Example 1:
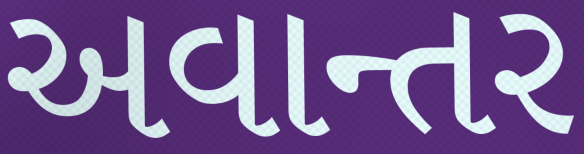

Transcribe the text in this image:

અવાન્તર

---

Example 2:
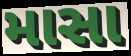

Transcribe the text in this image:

માસા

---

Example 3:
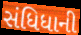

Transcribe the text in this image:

સંધિધાની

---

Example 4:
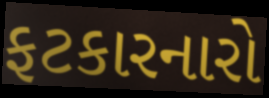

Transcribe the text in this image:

ફટકારનારો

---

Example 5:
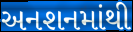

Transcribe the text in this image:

અનશનમાંથી